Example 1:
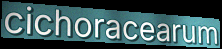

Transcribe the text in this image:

cichoracearum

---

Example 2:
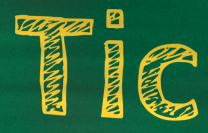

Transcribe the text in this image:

Tic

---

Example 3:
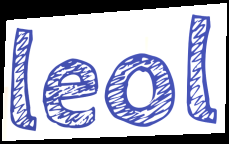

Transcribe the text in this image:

leol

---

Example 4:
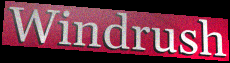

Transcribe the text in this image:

Windrush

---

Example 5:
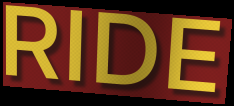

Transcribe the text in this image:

RIDE